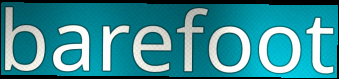
barefoot